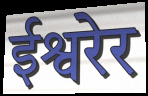
ईश्वरेर